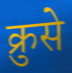
क्रुसे